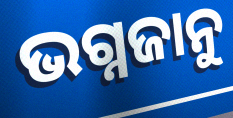
ଭଗ୍ନଜାନୁ